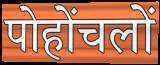
पोहोंचलों